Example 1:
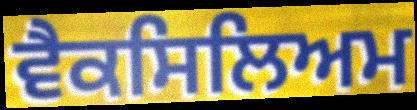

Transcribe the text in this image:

ਵੈਕਸਿਲਿਅਮ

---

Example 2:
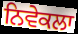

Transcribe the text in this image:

ਨਿਵੇਕਲਾ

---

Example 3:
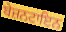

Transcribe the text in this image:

ਬੇਜ਼ਨਟਾਇਨ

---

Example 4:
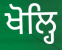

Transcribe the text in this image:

ਖੋਲ੍ਹਿ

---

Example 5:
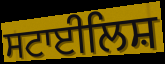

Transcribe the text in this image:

ਸਟਾਈਲਿਸ਼